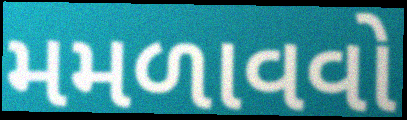
મમળાવવો